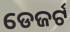
ଡେଜର୍ଟ